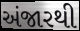
અંજારથી